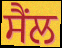
ਸੈਂਲ